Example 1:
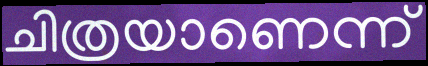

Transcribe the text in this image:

ചിത്രയാണെന്ന്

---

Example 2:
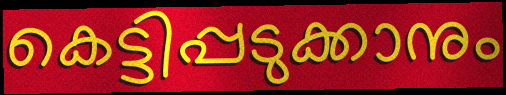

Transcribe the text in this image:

കെട്ടിപ്പടുക്കാനും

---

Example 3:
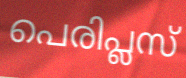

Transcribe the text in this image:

പെരിപ്ലസ്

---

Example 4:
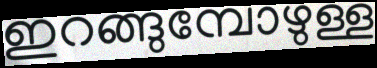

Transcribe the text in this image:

ഇറങ്ങുമ്പോഴുള്ള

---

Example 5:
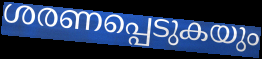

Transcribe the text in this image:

ശരണപ്പെടുകയും